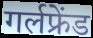
गर्लफ्रेंड